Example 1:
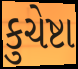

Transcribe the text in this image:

કુચેષ્ટા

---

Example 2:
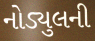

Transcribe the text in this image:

નોડ્યુલની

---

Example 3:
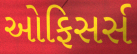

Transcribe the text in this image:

ઓફિસર્સ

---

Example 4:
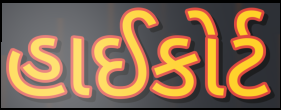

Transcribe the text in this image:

હાઈકોર્ટ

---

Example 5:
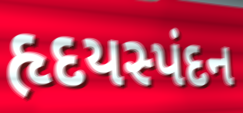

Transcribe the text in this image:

હૃદયસ્પંદન